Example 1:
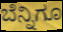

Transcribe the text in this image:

ಬೆನ್ನಿಗೂ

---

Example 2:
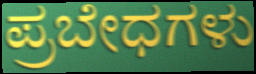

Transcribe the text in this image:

ಪ್ರಬೇಧಗಳು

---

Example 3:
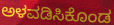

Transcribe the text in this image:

ಅಳವಡಿಸಿಕೊಂಡ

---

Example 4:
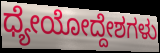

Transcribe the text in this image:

ಧ್ಯೇಯೋದ್ದೇಶಗಳು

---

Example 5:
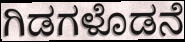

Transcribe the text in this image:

ಗಿಡಗಳೊಡನೆ